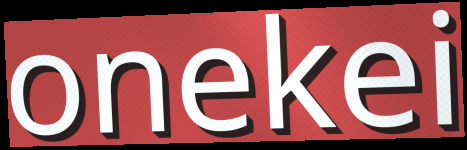
onekei